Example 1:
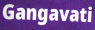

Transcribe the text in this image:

Gangavati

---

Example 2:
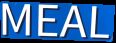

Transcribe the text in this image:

MEAL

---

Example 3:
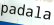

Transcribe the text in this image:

padala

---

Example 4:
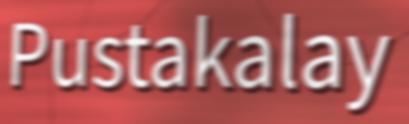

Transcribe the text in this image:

Pustakalay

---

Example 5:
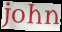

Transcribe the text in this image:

john